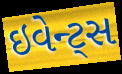
ઇવેન્ટ્સ